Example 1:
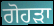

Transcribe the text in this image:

ਗੋਹੜਾ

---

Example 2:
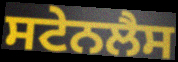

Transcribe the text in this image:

ਸਟੇਨਲੈਸ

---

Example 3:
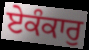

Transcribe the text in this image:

ਏਕੰਕਾਰੁ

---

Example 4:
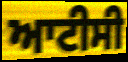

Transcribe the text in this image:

ਆਟੀਸੀ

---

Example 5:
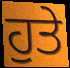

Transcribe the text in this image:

ਹੁਤੇ